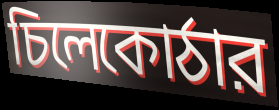
চিলেকোঠার